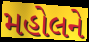
મહોલને